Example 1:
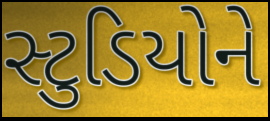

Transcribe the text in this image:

સ્ટુડિયોને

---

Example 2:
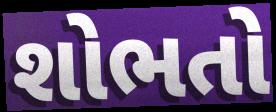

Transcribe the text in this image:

શોભતો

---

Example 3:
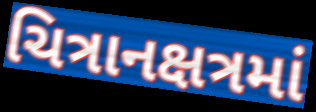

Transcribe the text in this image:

ચિત્રાનક્ષત્રમાં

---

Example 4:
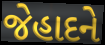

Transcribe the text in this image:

જેહાદને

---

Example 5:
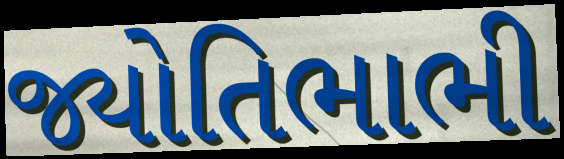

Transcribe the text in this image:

જ્યોતિભાભી